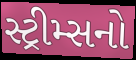
સ્ટ્રીમ્સનો